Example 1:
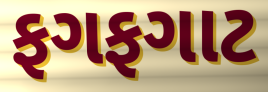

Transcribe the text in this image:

ફગફગાટ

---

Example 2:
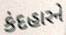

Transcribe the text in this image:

કંદહારને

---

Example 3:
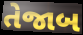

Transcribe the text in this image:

તેજાબ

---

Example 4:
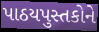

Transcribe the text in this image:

પાઠયપુસ્તકોને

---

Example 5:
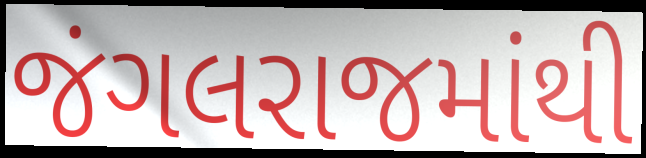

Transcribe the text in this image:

જંગલરાજમાંથી